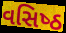
વસિષ્‍ઠ